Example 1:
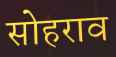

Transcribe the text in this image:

सोहराव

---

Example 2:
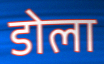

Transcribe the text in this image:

डोला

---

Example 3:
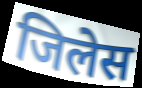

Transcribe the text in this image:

जिलेस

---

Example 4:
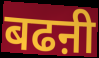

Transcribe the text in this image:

बढऩी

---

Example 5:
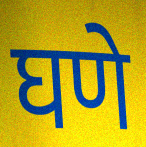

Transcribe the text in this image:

घणे